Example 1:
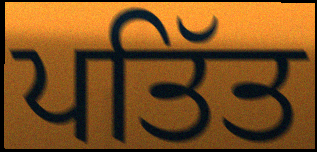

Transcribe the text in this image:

ਪਤਿੱਤ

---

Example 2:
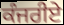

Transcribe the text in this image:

ਕੰਜਰੀਏ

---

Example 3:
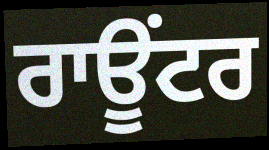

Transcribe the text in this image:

ਰਾਊਂਟਰ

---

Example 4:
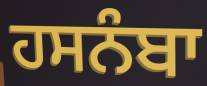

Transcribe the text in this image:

ਹਸਨੰਬਾ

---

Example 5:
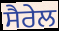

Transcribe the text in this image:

ਸੈਰੇਲ